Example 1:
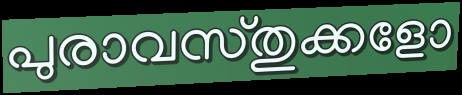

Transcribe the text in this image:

പുരാവസ്തുക്കളോ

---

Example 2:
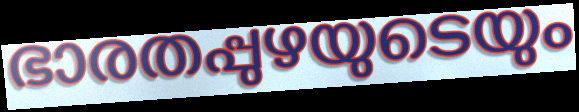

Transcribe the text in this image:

ഭാരതപ്പുഴയുടെയും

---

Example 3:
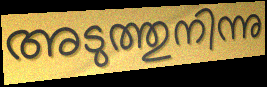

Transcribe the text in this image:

അടുത്തുനിന്നു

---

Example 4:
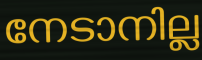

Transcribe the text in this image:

നേടാനില്ല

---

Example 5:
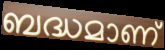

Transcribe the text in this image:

ബദ്ധമാണ്